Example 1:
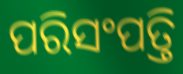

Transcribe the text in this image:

ପରିସଂପତ୍ତି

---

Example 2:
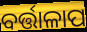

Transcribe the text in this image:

ବର୍ତ୍ତାଳାପ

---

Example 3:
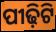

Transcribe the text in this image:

ପୀଢ଼ିଟି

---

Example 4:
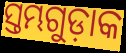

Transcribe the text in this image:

ସ୍ତମ୍ଭଗୁଡ଼ାକ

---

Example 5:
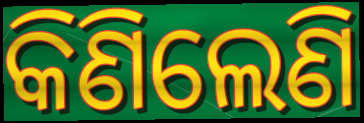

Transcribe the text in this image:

କିଣିଲେଣି